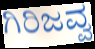
ಗಿರಿಜವ್ವ